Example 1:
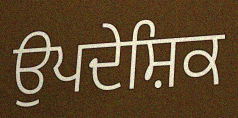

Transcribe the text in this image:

ਉਪਦੇਸ਼ਿਕ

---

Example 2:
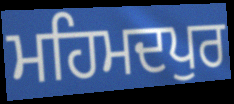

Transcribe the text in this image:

ਮਹਿਮਦਪੁਰ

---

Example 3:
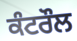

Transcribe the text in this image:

ਕੰਟਰੌਲ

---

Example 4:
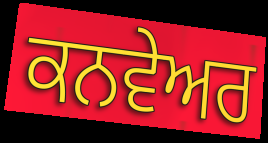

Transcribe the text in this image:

ਕਨਵੇਅਰ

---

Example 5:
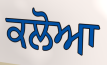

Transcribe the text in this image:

ਕਲੋਆ